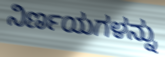
ನಿರ್ಣಯಗಳನ್ನು